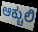
ಆಕ್ಚುಲಿ